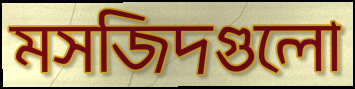
মসজিদগুলো